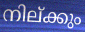
നില്ക്കും